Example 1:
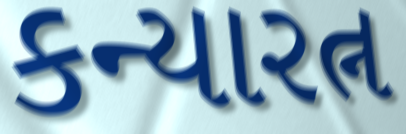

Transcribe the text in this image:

કન્યારત્ન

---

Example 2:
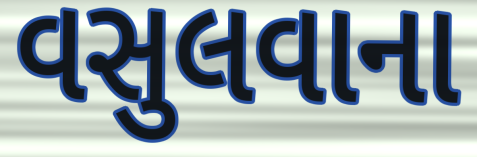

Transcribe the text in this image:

વસુલવાના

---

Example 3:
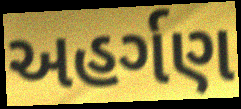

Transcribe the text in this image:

અહર્ગણ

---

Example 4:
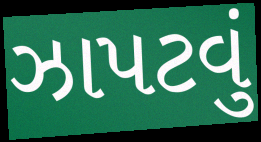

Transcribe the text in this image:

ઝાપટવું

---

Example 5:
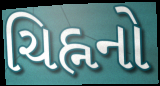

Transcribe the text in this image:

ચિહ્નનો